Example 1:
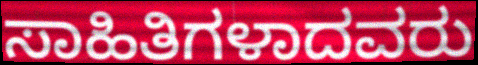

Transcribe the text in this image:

ಸಾಹಿತಿಗಳಾದವರು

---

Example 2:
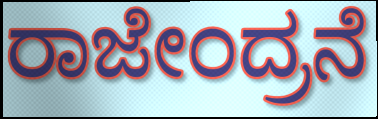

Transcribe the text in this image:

ರಾಜೇಂದ್ರನೆ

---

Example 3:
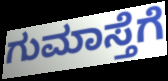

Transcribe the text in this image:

ಗುಮಾಸ್ತೆಗೆ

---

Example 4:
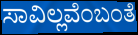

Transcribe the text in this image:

ಸಾವಿಲ್ಲವೆಂಬಂತೆ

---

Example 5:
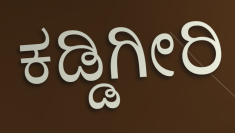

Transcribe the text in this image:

ಕಡ್ಡಿಗೀರಿ